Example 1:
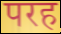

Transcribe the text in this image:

परह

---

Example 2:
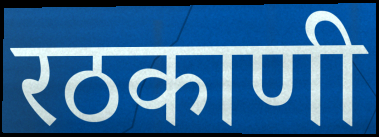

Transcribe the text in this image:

रठकाणी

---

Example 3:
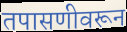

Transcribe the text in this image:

तपासणीवरून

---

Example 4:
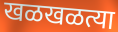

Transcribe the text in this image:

खळखळत्या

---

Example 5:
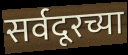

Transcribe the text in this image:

सर्वदूरच्या